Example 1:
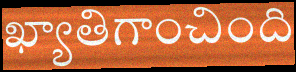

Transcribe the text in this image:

ఖ్యాతిగాంచింది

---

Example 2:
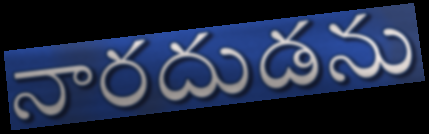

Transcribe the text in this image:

నారదుడను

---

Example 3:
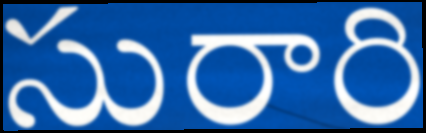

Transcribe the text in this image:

సురారి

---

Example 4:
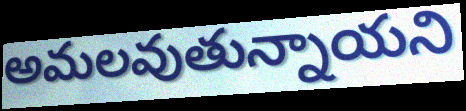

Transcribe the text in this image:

అమలవుతున్నాయని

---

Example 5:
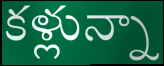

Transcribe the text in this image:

కళ్లున్నా